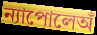
ন্যাপোলেঅঁ